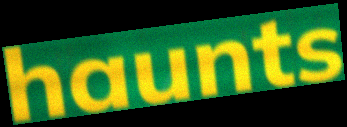
haunts